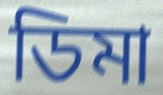
ডিমা